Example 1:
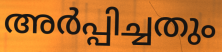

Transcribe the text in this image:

അർപ്പിച്ചതും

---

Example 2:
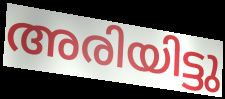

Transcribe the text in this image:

അരിയിട്ടു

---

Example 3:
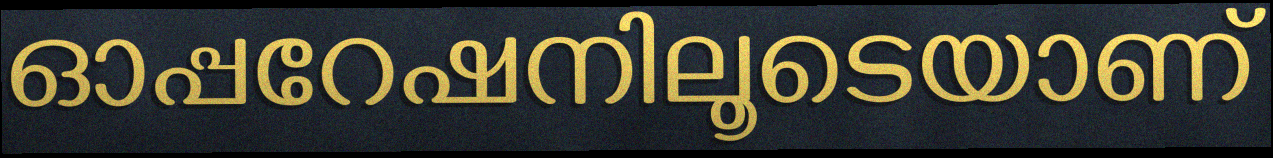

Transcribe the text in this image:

ഓപ്പറേഷനിലൂടെയാണ്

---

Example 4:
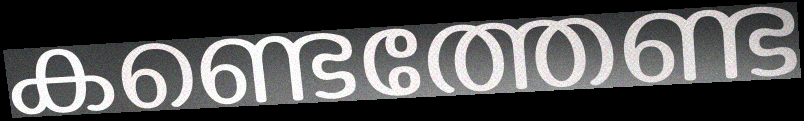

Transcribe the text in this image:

കണ്ടെത്തേണ്ട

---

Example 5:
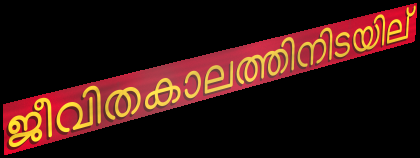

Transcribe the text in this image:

ജീവിതകാലത്തിനിടയില്